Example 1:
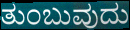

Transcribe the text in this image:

ತುಂಬುವುದು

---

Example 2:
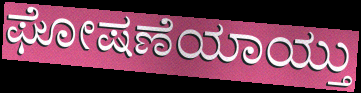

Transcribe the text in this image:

ಘೋಷಣೆಯಾಯ್ತು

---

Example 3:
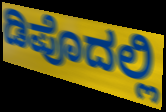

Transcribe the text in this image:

ಡಿಪೊದಲ್ಲಿ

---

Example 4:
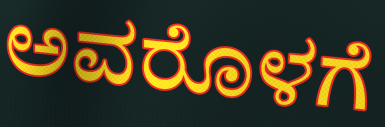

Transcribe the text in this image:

ಅವರೊಳಗೆ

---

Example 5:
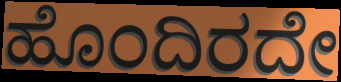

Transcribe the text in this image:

ಹೊಂದಿರದೇ